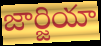
జార్జియా